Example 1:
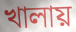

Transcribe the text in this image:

খালায়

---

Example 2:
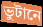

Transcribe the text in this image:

ভুটানে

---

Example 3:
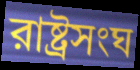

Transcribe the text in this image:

রাষ্ট্রসংঘ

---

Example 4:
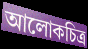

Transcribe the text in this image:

আলোকচিত্র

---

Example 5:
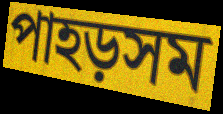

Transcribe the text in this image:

পাহড়সম